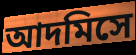
আদমিসে